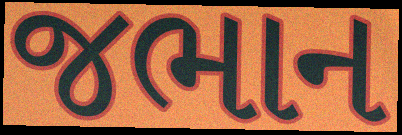
જભાન